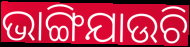
ଭାଙ୍ଗିଯାଉଚି